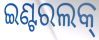
ଇଣ୍ଟରଲକ୍